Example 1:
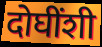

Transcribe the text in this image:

दोघींशी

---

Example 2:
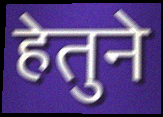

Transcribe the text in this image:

हेतुने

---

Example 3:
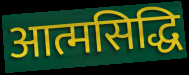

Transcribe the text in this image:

आत्मसिद्धि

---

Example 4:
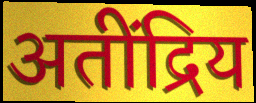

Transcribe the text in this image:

अतींद्रिय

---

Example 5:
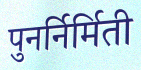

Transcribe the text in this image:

पुनर्निर्मिती